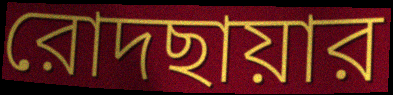
রোদছায়ার